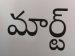
మార్ట్